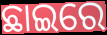
ଛାଇରେ